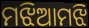
ମଝିଆମଝି